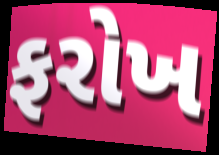
ફરોખ